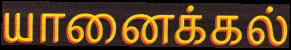
யானைக்கல்